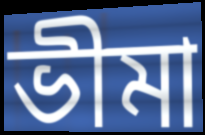
ভীমা